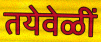
तयेवेळीं